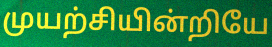
முயற்சியின்றியே